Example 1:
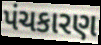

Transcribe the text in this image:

પંચકારણ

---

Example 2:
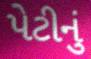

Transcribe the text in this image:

પેટીનું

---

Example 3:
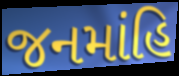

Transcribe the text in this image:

જનમાંહિ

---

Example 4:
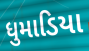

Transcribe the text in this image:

ધુમાડિયા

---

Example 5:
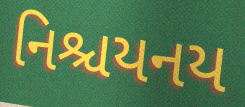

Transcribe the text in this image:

નિશ્ચયનય